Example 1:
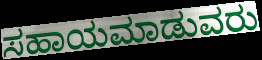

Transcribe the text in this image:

ಸಹಾಯಮಾಡುವರು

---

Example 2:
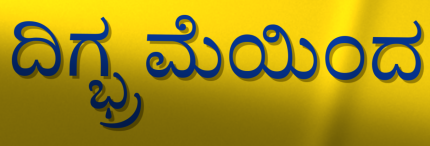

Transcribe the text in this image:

ದಿಗ್ಭ್ರಮೆಯಿಂದ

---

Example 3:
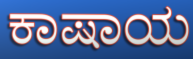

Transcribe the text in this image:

ಕಾಷಾಯ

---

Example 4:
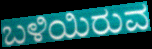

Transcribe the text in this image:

ಬಳಿಯಿರುವ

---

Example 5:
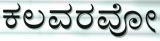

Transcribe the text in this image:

ಕಲವರವೋ